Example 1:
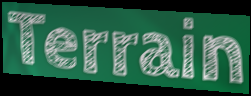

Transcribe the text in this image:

Terrain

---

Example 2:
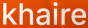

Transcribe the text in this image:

khaire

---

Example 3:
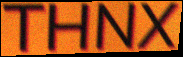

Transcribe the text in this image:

THNX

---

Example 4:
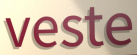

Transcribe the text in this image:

veste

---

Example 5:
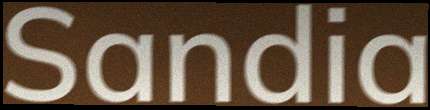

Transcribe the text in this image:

Sandia